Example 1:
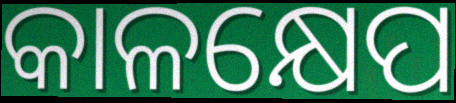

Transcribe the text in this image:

କାଳକ୍ଷେପ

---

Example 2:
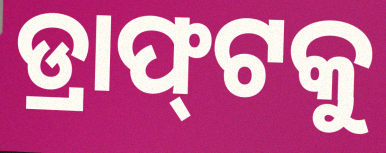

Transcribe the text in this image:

ଡ୍ରାଫ୍‌ଟକୁ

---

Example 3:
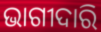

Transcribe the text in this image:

ଭାଗୀଦାରି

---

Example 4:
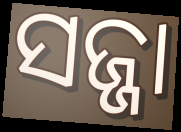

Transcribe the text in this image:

ସଜ୍ଜା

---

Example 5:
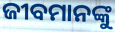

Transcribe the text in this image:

ଜୀବମାନଙ୍କୁ